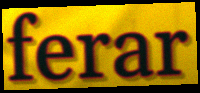
ferar